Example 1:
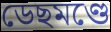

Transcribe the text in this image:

ডেছমণ্ডে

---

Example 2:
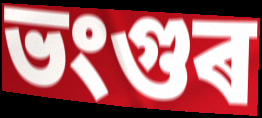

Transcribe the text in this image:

ভংগুৰ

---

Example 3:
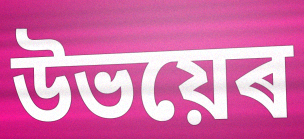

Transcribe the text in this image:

উভয়েৰ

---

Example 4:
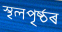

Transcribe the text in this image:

স্থলপৃষ্ঠৰ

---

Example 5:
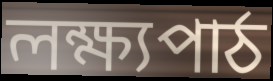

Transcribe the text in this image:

লক্ষ্যপাঠ